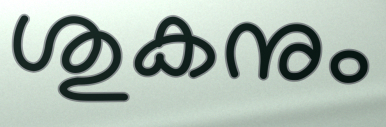
ശുകനും